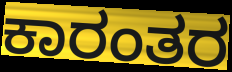
ಕಾರಂತರ